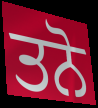
ਤਨੋ